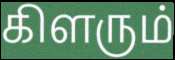
கிளரும்